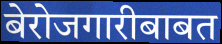
बेरोजगारीबाबत